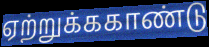
ஏற்றுக்ககாண்டு